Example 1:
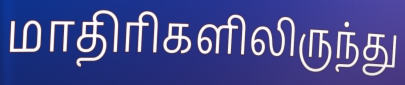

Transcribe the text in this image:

மாதிரிகளிலிருந்து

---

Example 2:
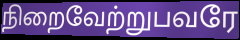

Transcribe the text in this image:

நிறைவேற்றுபவரே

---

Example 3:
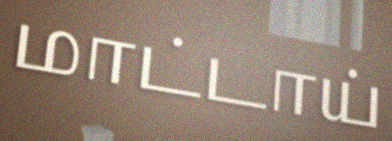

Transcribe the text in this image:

மாட்டாய்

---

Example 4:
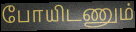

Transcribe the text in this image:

போயிடணும்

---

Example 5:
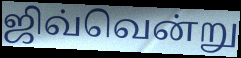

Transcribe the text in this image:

ஜிவ்வென்று